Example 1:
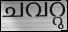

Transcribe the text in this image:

ചവറ്റു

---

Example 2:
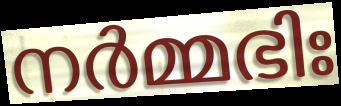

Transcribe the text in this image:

നർമ്മഭിഃ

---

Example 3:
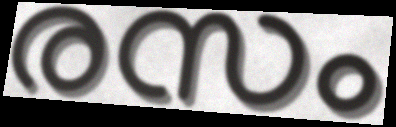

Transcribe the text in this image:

രസം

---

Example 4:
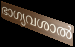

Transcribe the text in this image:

ഭാഗ്യവശാൽ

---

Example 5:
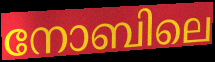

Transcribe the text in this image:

നോബിലെ